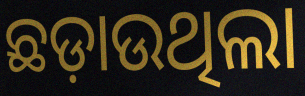
ଛଡ଼ାଉଥିଲା